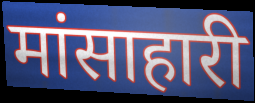
मांसाहारी